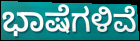
ಭಾಷೆಗಳಿವೆ